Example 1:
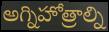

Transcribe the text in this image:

అగ్నిహోత్రాల్ని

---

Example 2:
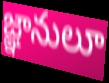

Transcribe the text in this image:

జ్ఞానులూ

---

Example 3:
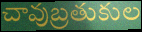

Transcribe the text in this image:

చావుబ్రతుకుల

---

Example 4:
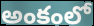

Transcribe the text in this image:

అంకంలో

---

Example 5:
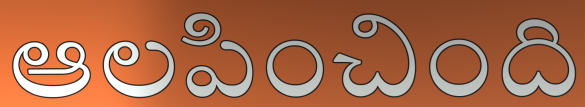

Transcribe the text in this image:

ఆలపించింది